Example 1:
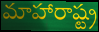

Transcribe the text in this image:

మాహారాష్ట్ర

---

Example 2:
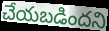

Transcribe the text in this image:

చేయబడిందని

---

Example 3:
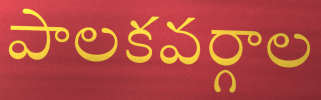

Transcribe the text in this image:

పాలకవర్గాల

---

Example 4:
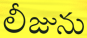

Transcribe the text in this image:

లీజును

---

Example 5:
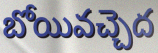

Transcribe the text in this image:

బోయివచ్చెద